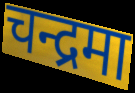
चन्द्रमा